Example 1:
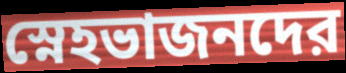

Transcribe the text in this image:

স্নেহভাজনদের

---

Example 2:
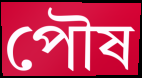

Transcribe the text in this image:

পৌষ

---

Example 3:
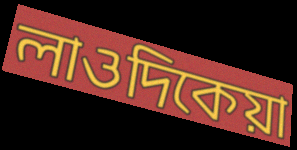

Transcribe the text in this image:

লাওদিকেয়া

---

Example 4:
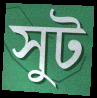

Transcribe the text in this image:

সুট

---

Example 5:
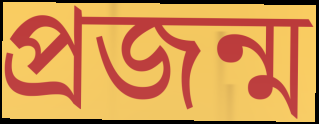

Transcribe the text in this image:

প্রজন্ম